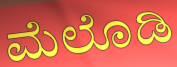
ಮೆಲೊಡಿ